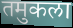
तमुकला